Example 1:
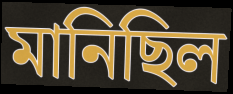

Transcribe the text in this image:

মানিছিল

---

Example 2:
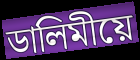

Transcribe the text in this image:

ডালিমীয়ে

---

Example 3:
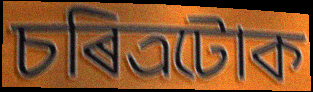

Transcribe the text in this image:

চৰিত্ৰটোক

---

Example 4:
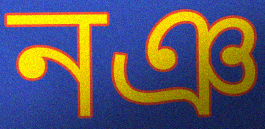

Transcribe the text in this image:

নঞ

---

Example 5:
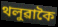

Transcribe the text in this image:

থলুৱাকৈ